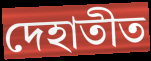
দেহাতীত